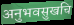
अनुभवसुखचि